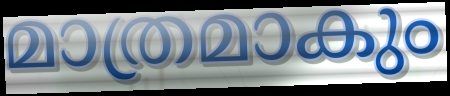
മാത്രമാകും